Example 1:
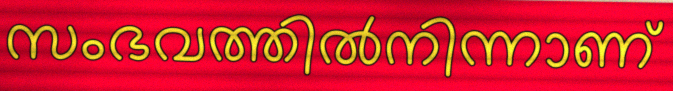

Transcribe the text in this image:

സംഭവത്തിൽനിന്നാണ്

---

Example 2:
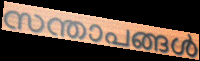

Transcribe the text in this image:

സന്താപങ്ങൾ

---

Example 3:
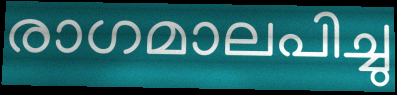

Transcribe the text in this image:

രാഗമാലപിച്ചു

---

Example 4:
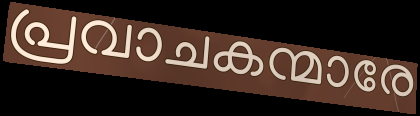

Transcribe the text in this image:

പ്രവാചകന്മാരേ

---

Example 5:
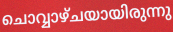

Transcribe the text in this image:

ചൊവ്വാഴ്ചയായിരുന്നു